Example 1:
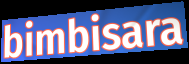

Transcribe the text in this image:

bimbisara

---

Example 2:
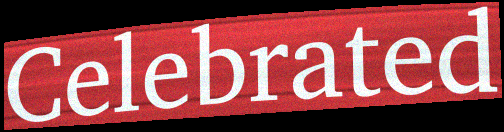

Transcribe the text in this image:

Celebrated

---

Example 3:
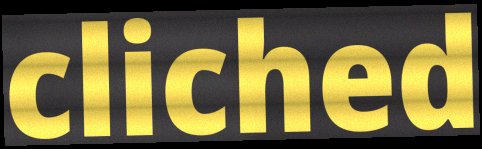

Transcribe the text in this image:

cliched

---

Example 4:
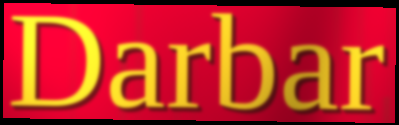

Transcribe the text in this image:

Darbar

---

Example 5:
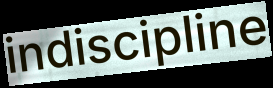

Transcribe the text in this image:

indiscipline